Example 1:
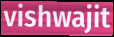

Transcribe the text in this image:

vishwajit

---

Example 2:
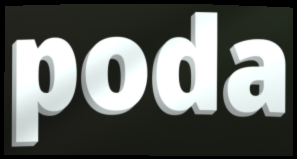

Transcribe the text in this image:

poda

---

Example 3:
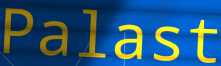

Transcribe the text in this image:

Palast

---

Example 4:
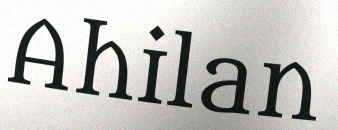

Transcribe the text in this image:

Ahilan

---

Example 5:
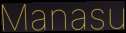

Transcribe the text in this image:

Manasu